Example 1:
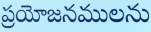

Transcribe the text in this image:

ప్రయోజనములను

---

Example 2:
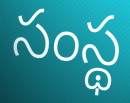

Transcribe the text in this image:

సంస్థ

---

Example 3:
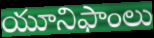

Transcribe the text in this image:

యూనిఫాంలు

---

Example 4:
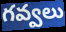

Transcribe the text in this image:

గవ్వలు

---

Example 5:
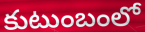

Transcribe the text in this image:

కుటుంబంలో